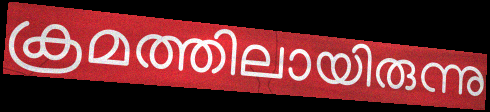
ക്രമത്തിലായിരുന്നു